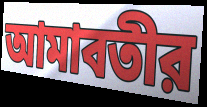
আমাবতীর